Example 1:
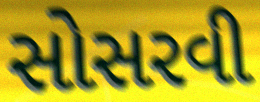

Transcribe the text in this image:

સોસરવી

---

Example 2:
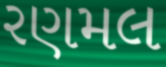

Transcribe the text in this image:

રણમલ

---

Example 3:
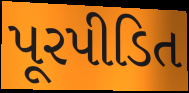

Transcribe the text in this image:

પૂરપીડિત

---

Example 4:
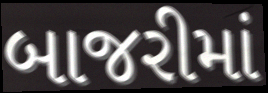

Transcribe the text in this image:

બાજરીમાં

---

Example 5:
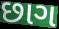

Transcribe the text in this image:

છાગ